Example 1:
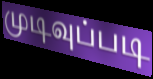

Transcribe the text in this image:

முடிவுப்படி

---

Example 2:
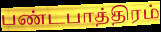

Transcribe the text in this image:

பண்டபாத்திரம்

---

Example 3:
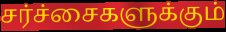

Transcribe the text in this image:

சர்ச்சைகளுக்கும்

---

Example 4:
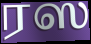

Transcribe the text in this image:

ரஸ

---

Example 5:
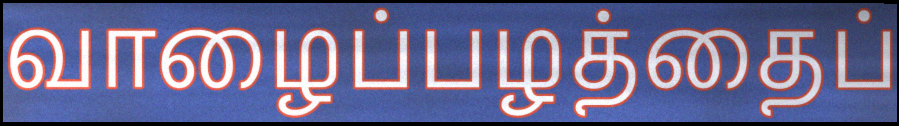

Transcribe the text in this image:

வாழைப்பழத்தைப்